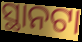
ସ୍ଥାନଟା